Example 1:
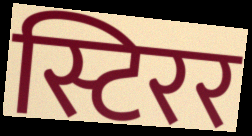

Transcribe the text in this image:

स्टिरर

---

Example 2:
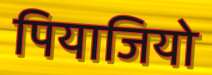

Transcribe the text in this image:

पियाजियो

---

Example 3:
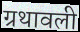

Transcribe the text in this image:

ग्रथावली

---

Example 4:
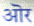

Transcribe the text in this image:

ऒर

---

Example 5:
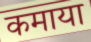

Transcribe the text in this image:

कमाया